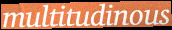
multitudinous